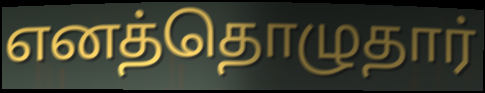
எனத்தொழுதார்